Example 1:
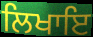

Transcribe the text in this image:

ਲਿਖਾਇ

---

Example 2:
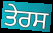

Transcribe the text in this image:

ਤੇਰਸ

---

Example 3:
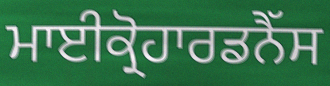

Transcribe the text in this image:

ਮਾਈਕ੍ਰੋਹਾਰਡਨੈੱਸ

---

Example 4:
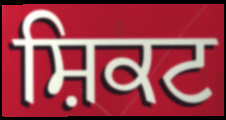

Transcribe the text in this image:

ਸ਼ਿਕਟ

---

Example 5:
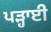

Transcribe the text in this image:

ਪੜ੍ਹਾਈ